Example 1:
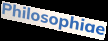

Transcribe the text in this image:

Philosophiae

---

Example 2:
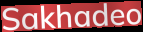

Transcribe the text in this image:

Sakhadeo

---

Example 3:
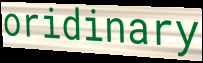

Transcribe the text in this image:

oridinary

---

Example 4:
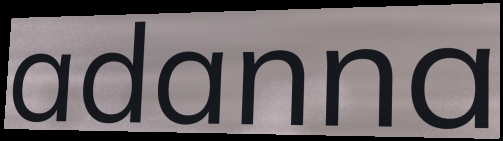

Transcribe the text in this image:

adanna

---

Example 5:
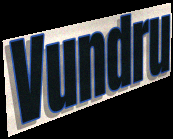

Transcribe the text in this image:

Vundru